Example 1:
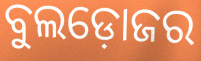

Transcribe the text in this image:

ବୁଲଡ଼ୋଜର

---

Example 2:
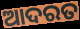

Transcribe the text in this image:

ଆଦରତ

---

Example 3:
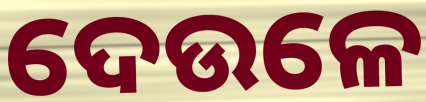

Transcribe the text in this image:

ଦେଉଳେ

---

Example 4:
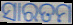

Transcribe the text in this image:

ସାରତମ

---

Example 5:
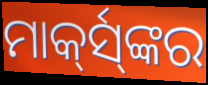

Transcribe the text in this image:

ମାର୍କ୍‍ସ୍‍ଙ୍କର